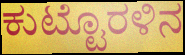
ಕುಟ್ಟೊರಳಿನ